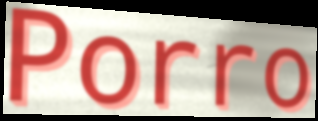
Porro